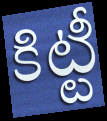
కిట్టీ